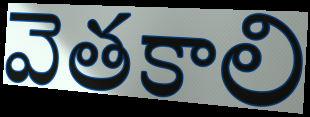
వెతకాలి